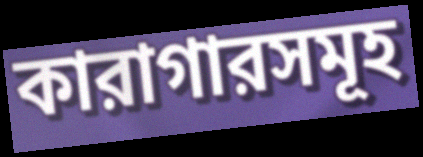
কারাগারসমূহ